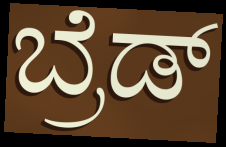
ಬ್ರೆಡ್